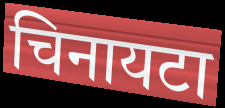
चिनायटा